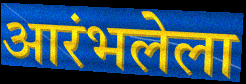
आरंभलेला